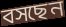
বসছেন